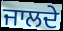
ਜਾਲਦੇ